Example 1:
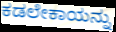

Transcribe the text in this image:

ಕಡಲೇಕಾಯನ್ನು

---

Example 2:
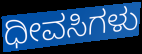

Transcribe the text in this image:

ಧೀವಸಿಗಳು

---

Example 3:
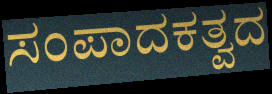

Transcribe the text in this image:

ಸಂಪಾದಕತ್ವದ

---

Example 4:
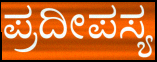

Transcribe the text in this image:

ಪ್ರದೀಪಸ್ಯ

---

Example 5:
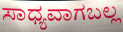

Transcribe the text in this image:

ಸಾಧ್ಯವಾಗಬಲ್ಲ